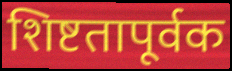
शिष्टतापूर्वक